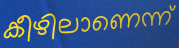
കീഴിലാണെന്ന്